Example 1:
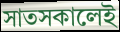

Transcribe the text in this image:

সাতসকালেই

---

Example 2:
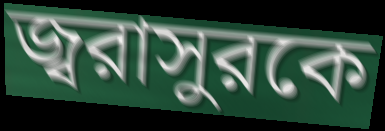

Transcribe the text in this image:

জ্বরাসুরকে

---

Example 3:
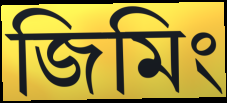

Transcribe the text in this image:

জিমিং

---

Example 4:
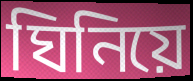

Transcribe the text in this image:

ঘিনিয়ে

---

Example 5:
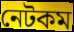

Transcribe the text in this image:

নেটকম